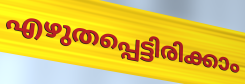
എഴുതപ്പെട്ടിരിക്കാം